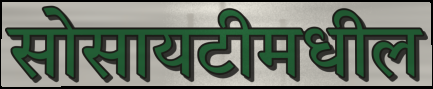
सोसायटीमधील